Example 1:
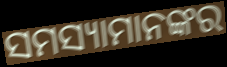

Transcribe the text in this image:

ସମସ୍ଯାମାନଙ୍କର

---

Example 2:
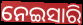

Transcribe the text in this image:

ନେଇସାରି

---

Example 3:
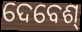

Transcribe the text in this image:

ଦେବେଶ୍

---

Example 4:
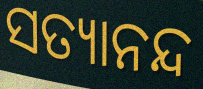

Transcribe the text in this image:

ସତ୍ୟାନନ୍ଦ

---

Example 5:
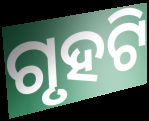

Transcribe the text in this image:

ଗୃହଟି